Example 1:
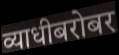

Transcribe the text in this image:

व्याधीबरोबर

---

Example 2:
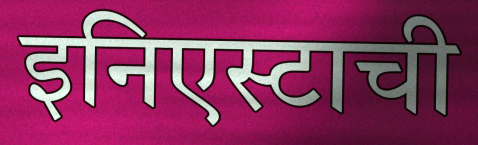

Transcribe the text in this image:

इनिएस्टाची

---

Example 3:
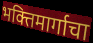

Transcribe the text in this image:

भक्तिमार्गाचा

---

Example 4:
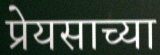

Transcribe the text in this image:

प्रेयसाच्या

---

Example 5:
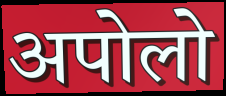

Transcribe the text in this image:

अपोलो